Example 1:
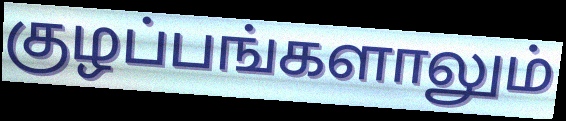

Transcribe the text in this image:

குழப்பங்களாலும்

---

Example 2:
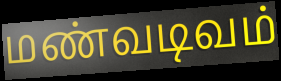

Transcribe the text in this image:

மண்வடிவம்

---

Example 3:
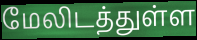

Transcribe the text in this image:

மேலிடத்துள்ள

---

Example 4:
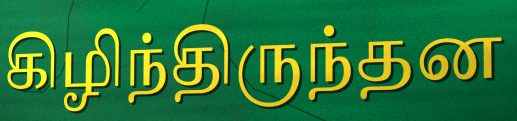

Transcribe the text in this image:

கிழிந்திருந்தன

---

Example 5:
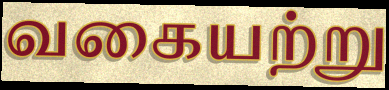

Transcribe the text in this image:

வகையற்று